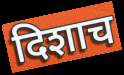
दिशाच